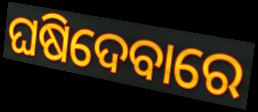
ଘଷିଦେବାରେ